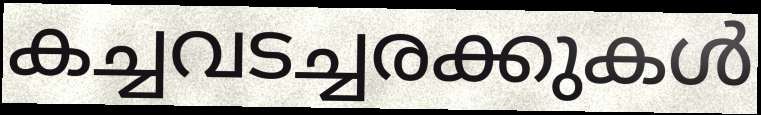
കച്ചവടച്ചരക്കുകൾ